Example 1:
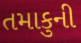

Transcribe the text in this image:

તમાકુની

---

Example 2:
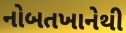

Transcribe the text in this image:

નોબતખાનેથી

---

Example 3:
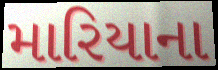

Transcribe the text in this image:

મારિયાના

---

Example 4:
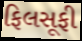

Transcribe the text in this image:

ફિલસૂફી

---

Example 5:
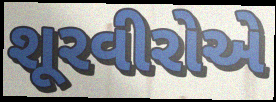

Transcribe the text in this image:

શૂરવીરોએ